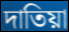
দাতিয়া